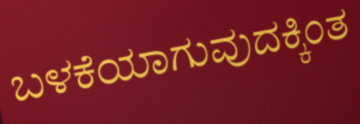
ಬಳಕೆಯಾಗುವುದಕ್ಕಿಂತ